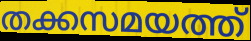
തക്കസമയത്ത്